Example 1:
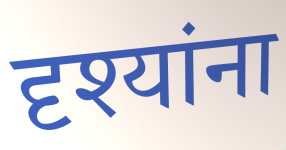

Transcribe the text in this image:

दृश्यांना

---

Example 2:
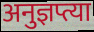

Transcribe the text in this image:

अनुज्ञप्त्या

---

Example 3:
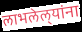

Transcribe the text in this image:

लाभलेल्यांना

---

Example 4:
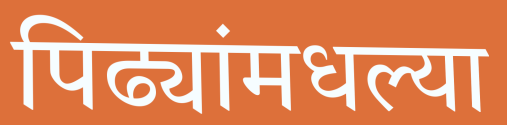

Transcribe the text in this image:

पिढ्यांमधल्या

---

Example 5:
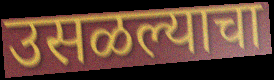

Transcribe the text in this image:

उसळल्याचा